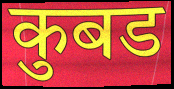
कुबड